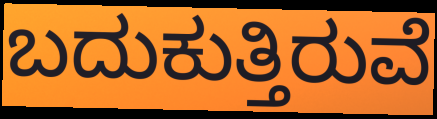
ಬದುಕುತ್ತಿರುವೆ